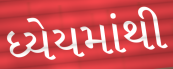
ધ્યેયમાંથી